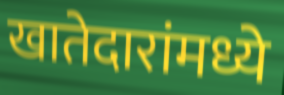
खातेदारांमध्ये